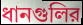
ধানগুলির